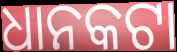
ଧାନକଟା